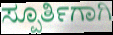
ಸ್ಪೂರ್ತಿಗಾಗಿ